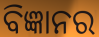
ବିଜ୍ଞାନର